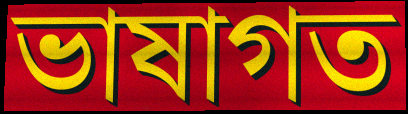
ভাষাগত